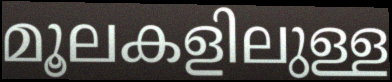
മൂലകളിലുള്ള